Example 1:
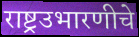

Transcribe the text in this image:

राष्ट्रउभारणीचे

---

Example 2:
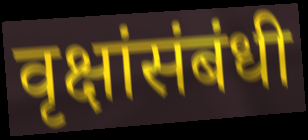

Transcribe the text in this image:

वृक्षांसंबंधी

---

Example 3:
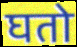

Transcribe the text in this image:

घतो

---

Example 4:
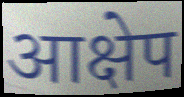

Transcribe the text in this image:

आक्षेप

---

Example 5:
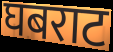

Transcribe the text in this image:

घबराट